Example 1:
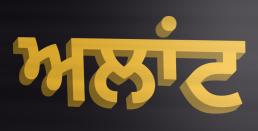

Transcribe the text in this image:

ਅਲਾਂਟ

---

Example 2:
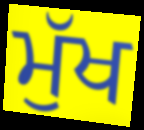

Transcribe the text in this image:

ਮੁੱਖ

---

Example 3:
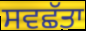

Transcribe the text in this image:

ਸਵਛੱਤਾ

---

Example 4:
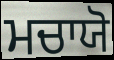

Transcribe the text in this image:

ਮਚਾਯੋ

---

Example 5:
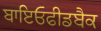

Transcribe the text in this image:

ਬਾਇਓਫੀਡਬੈਕ